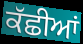
ਕੱਛੀਆਂ